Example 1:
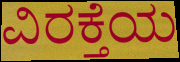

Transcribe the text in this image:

ವಿರಕ್ತೆಯ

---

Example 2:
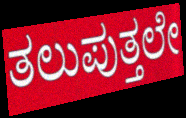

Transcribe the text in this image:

ತಲುಪುತ್ತಲೇ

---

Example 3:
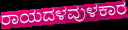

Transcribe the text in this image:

ರಾಯದಳವುಳಕಾರ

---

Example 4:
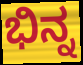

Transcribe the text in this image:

ಭಿನ್ನ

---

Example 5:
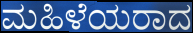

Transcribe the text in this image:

ಮಹಿಳೆಯರಾದ